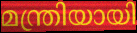
മന്ത്രിയായി